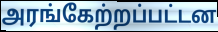
அரங்கேற்றப்பட்டன